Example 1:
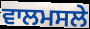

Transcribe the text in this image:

ਵਾਲਮਸਲੇ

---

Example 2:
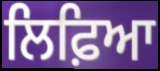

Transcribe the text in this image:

ਲਿਫ਼ਿਆ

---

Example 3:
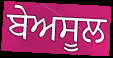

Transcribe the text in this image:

ਬੇਅਸੂਲ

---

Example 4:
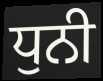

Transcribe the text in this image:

ਧੁਨੀ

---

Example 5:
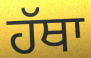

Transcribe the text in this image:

ਹੱਥਾ